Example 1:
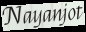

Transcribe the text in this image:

Nayanjot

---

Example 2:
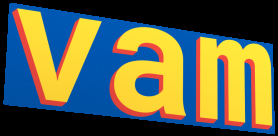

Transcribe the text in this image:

vam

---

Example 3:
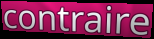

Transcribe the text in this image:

contraire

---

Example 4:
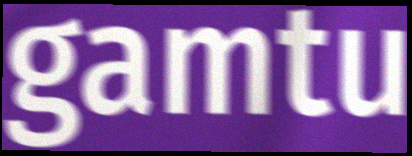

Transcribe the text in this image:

gamtu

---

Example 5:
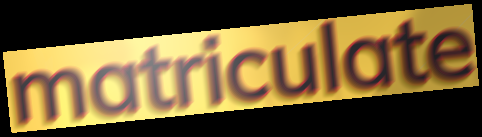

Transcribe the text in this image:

matriculate